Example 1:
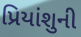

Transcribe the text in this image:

પ્રિયાંશુની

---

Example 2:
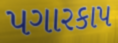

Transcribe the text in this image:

પગારકાપ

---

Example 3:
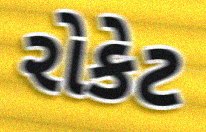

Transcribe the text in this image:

રોકેટ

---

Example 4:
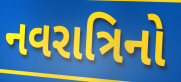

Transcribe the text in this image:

નવરાત્રિનો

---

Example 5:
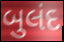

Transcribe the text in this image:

બુલંદ